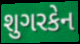
શુગરકેન